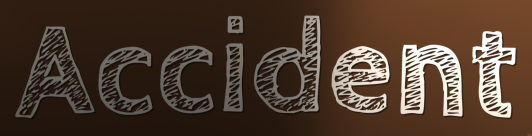
Accident